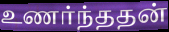
உணர்ந்ததன்